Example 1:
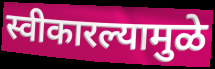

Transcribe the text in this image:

स्वीकारल्यामुळे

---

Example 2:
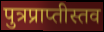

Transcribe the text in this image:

पुत्रप्राप्तीस्तव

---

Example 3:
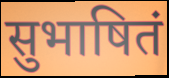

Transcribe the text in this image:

सुभाषितं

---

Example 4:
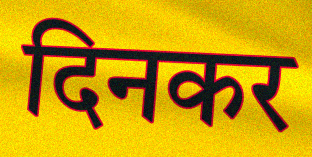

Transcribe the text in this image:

दिनकर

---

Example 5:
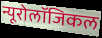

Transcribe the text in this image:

न्यूरोलॉजिकल